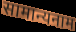
सामान्यनाम